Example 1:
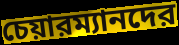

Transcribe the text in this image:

চেয়ারম্যানদের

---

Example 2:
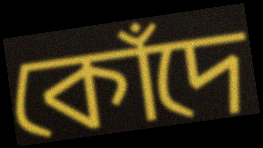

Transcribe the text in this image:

কোঁদে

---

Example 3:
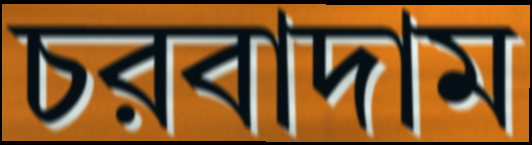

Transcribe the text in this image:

চরবাদাম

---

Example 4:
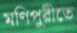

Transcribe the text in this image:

মণিপুরীতে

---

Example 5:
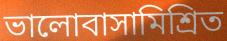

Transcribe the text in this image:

ভালোবাসামিশ্রিত